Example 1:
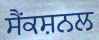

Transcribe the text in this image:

ਸੈਂਕਸ਼ਨਲ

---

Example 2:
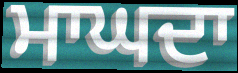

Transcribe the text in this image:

ਮਾਘਦਾ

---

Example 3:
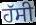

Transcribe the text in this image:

ਹੱਸੀ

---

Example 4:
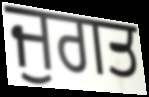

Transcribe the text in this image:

ਜੁਗਤ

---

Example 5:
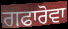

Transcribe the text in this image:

ਗਫਾਰੋਵਾ